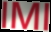
IMI